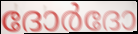
ദോർദോ